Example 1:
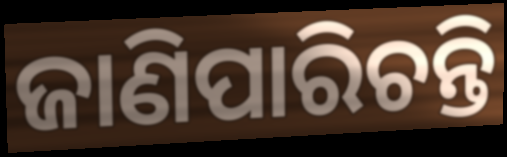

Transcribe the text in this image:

ଜାଣିପାରିଚନ୍ତି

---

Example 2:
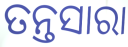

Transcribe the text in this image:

ତନ୍ତସାରା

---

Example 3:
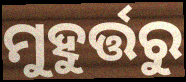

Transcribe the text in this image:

ମୁହୁର୍ତ୍ତରୁ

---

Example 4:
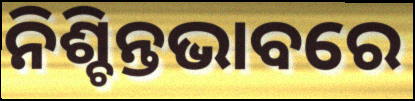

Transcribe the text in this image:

ନିଶ୍ଚିନ୍ତଭାବରେ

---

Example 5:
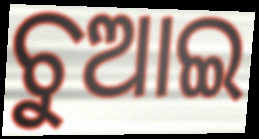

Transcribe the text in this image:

ଚୁଆଇ